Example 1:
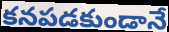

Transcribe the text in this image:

కనపడకుండానే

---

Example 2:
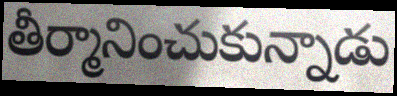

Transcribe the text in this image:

తీర్మానించుకున్నాడు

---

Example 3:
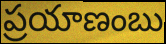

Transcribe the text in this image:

ప్రయాణంబు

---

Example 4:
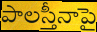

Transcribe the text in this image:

పాలస్తీనాపై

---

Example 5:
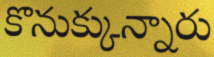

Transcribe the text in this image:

కొనుక్కున్నారు